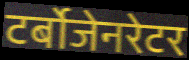
टर्बोजेनरेटर